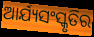
ଆର୍ଯ୍ୟସଂସ୍କୃତିର